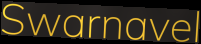
Swarnavel